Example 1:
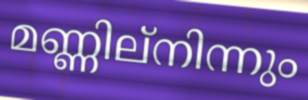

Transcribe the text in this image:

മണ്ണില്നിന്നും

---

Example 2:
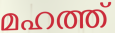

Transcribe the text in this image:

മഹത്ത്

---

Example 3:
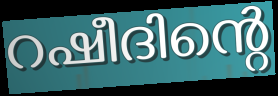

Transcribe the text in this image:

റഷീദിന്റെ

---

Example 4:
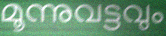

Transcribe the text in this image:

മൂന്നുവട്ടവും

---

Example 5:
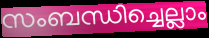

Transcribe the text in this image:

സംബന്ധിച്ചെല്ലാം